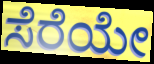
ಸೆರೆಯೇ